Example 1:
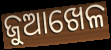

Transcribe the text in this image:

ଜୁଆଖେଳ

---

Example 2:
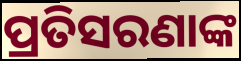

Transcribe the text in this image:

ପ୍ରତିସରଣାଙ୍କ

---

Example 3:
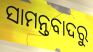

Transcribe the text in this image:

ସାମନ୍ତବାଦରୁ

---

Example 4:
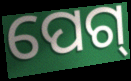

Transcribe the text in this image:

ପେଗ୍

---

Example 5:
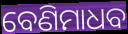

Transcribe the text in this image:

ବେଣିମାଧବ